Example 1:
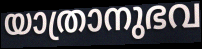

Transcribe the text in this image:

യാത്രാനുഭവ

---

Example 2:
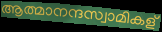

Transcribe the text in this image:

ആത്മാനന്ദസ്വാമികള്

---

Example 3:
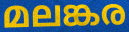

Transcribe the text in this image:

മലങ്കര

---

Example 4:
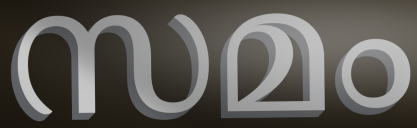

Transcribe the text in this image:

സമം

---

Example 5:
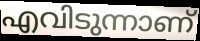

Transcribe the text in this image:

എവിടുന്നാണ്